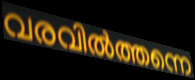
വരവിൽത്തന്നെ